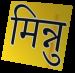
मिन्नु